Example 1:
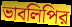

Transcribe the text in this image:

ভাবলিপির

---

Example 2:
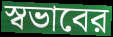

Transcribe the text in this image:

স্বভাবের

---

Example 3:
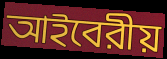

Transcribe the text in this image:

আইবেরীয়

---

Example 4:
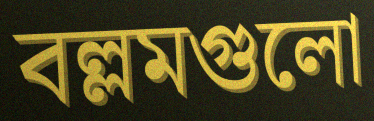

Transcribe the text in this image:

বল্লমগুলো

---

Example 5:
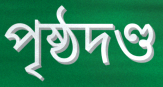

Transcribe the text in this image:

পৃষ্ঠদণ্ড